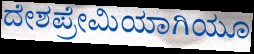
ದೇಶಪ್ರೇಮಿಯಾಗಿಯೂ